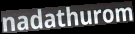
nadathurom